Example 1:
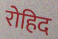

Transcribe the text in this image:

रोहिद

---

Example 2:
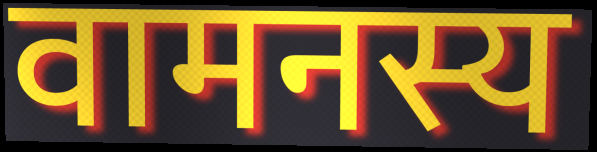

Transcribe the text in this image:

वामनस्य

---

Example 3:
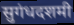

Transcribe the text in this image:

सुगंधदशमी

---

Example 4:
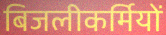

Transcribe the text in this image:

बिजलीकर्मियों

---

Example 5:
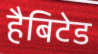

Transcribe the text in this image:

हैबिटेड